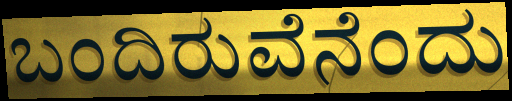
ಬಂದಿರುವೆನೆಂದು